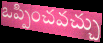
ఒప్పించవచ్చు